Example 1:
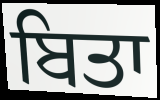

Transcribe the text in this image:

ਬਿਤਾ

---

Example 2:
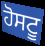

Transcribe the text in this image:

ਹੋਸਟੂ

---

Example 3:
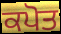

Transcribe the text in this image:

ਕਪੋਤ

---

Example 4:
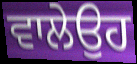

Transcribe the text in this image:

ਵਾਲੇਉਹ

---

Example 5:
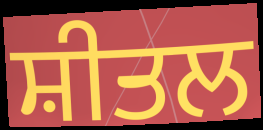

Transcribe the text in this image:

ਸ਼ੀਤਲ